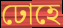
ঢোহে